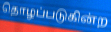
தொழப்படுகின்ற